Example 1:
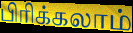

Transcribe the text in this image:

பிரிக்கலாம்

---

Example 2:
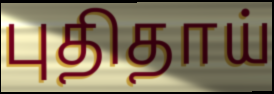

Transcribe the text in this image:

புதிதாய்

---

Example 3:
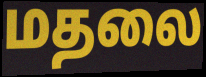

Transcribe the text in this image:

மதலை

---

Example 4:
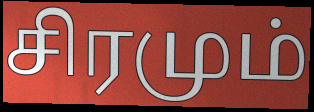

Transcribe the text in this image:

சிரமும்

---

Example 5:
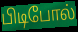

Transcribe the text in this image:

பிடிபோல்